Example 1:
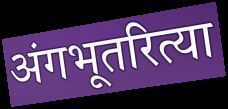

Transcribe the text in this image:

अंगभूतरित्या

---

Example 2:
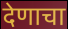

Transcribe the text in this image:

देणाचा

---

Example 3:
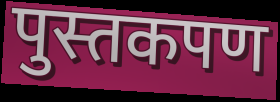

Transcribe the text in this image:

पुस्तकपण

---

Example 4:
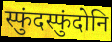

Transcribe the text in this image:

स्फुंदस्फुंदोनि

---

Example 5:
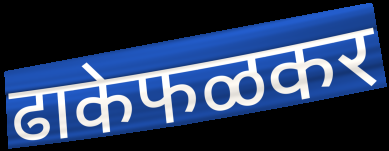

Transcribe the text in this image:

ढाकेफळकर